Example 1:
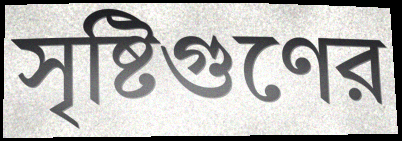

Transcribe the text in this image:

সৃষ্টিগুণের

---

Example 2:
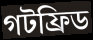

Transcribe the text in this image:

গটফ্রিড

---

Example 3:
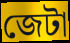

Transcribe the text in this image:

জেটা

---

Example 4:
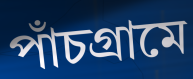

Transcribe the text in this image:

পাঁচগ্রামে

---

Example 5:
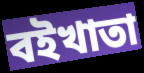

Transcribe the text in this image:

বইখাতা